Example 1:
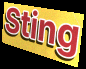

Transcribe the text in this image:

Sting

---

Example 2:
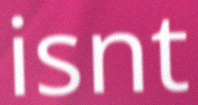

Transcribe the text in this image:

isnt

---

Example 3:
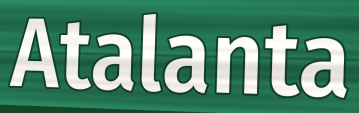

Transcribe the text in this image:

Atalanta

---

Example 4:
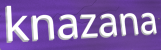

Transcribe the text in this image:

knazana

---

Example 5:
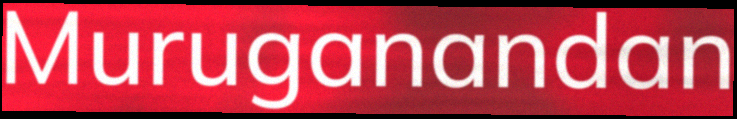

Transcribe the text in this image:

Muruganandan